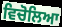
ਵਿਚੋਲਿਆ